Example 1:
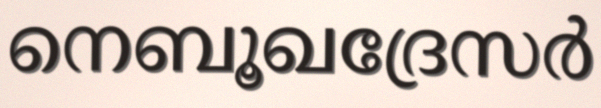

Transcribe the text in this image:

നെബൂഖദ്രേസർ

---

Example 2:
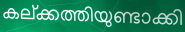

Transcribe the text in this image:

കല്ക്കത്തിയുണ്ടാക്കി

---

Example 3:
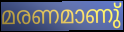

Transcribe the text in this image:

മരണമാണു്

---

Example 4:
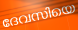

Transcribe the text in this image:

ദേവസിയെ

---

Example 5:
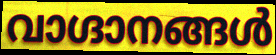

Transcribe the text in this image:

വാഗ്ദാനങ്ങൾ